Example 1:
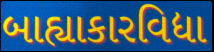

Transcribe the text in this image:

બાહ્યાકારવિદ્યા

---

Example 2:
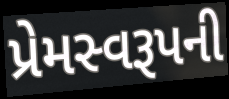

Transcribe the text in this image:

પ્રેમસ્વરૂપની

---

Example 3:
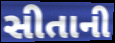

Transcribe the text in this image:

સીતાની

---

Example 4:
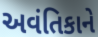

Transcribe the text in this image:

અવંતિકાને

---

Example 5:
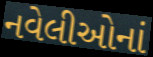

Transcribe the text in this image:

નવેલીઓનાં